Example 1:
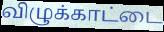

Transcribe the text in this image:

விழுக்காட்டை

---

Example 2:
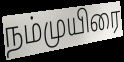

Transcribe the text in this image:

நம்முயிரை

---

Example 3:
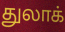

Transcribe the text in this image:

துலாக்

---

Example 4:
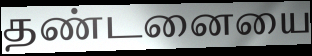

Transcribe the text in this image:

தண்டனையை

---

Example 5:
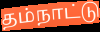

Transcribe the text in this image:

தம்நாட்டு